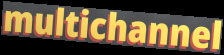
multichannel